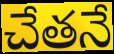
చేతనే